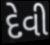
દેવી